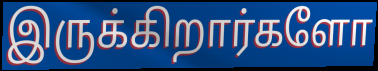
இருக்கிறார்களோ